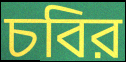
চবির